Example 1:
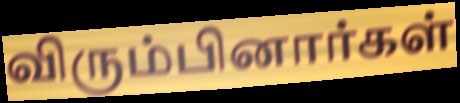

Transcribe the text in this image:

விரும்பினார்கள்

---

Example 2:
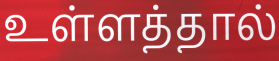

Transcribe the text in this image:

உள்ளத்தால்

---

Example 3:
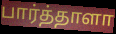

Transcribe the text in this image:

பார்த்தாளா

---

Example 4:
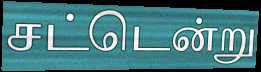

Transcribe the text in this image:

சட்டென்று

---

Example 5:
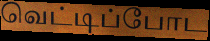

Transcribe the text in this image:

வெட்டிப்போட